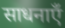
साधनाएँ